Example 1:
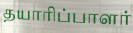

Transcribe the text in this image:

தயாரிப்பாளர்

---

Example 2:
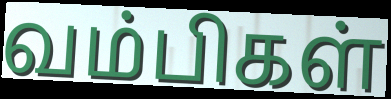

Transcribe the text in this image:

வம்பிகள்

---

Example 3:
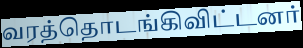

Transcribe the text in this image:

வரத்தொடங்கிவிட்டனர்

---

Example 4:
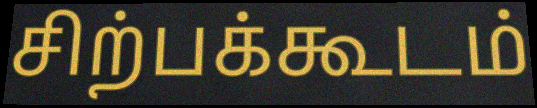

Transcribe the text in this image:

சிற்பக்கூடம்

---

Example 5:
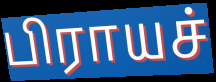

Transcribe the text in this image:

பிராயச்